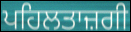
ਪਹਿਲਤਾਜ਼ਗੀ